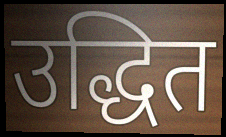
उद्धित